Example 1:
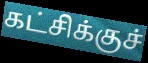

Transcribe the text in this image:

கட்சிக்குச்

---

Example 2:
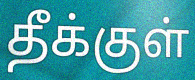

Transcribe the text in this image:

தீக்குள்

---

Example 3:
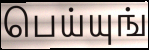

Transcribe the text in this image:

பெய்யுங்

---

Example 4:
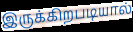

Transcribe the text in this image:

இருக்கிறபடியால்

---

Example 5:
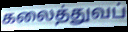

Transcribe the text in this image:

கலைத்துவப்